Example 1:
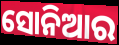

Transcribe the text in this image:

ସୋନିଆର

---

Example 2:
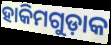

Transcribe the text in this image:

ହାକିମଗୁଡ଼ାକ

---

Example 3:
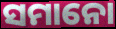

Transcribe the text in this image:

ସମାନୋ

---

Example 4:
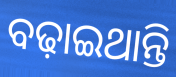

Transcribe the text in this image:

ବଢ଼ାଇଥାନ୍ତି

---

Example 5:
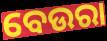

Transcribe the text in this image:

ବେଉରା